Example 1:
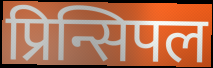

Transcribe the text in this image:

प्रिन्सिपल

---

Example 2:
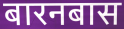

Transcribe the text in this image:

बारनबास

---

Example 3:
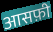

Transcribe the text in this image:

आसफ़ी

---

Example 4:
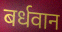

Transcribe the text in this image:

बर्धवान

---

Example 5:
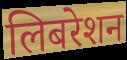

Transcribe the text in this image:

लिबरेशन